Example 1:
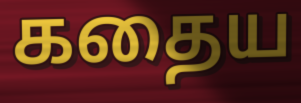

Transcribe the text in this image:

கதைய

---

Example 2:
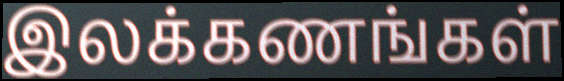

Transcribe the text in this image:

இலக்கணங்கள்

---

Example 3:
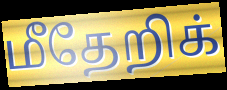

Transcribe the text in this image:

மீதேறிக்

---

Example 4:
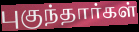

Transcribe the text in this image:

புகுந்தார்கள்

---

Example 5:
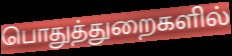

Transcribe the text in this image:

பொதுத்துறைகளில்